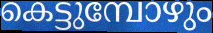
കെട്ടുമ്പോഴും